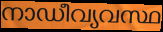
നാഡീവ്യവസ്ഥ